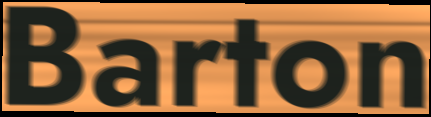
Barton